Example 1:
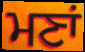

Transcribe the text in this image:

ਮਣਾਂ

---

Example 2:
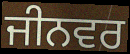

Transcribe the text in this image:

ਜੀਨਵਰ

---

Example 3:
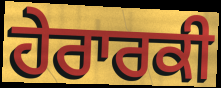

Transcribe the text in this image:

ਹੇਰਾਰਕੀ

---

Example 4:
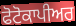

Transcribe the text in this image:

ਫੋਟੋਕਾਪੀਅਰ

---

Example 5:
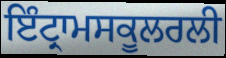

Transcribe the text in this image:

ਇੰਟ੍ਰਾਮਸਕੂਲਰਲੀ